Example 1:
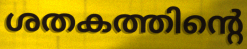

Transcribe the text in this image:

ശതകത്തിന്റെ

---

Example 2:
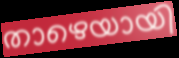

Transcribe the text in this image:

താഴെയായി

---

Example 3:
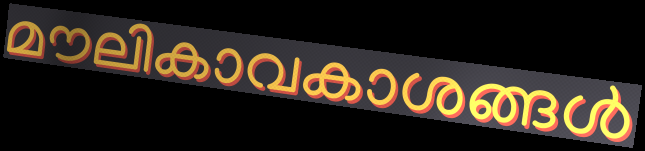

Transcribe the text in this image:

മൗലികാവകാശങ്ങൾ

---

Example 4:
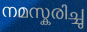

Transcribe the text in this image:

നമസ്കരിച്ചു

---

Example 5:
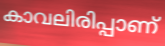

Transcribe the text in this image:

കാവലിരിപ്പാണ്